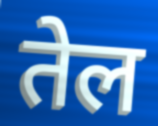
तेल